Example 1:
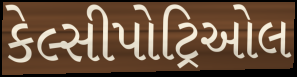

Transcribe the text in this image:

કેલ્સીપોટ્રિઓલ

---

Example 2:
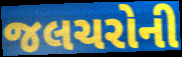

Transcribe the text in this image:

જલચરોની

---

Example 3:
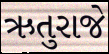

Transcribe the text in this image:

ઋતુરાજે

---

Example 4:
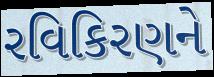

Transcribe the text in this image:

રવિકિરણને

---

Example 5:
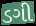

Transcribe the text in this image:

ડગી